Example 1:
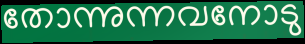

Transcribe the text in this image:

തോന്നുന്നവനോടു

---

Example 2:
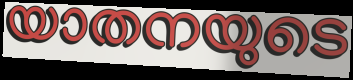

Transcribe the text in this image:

യാതനയുടെ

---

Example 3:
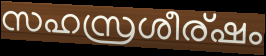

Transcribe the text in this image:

സഹസ്രശീര്ഷം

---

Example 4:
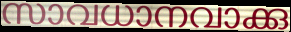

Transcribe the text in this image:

സാവധാനവാക്കു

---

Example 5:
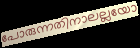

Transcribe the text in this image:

പോരുന്നതിനാലല്ലയോ